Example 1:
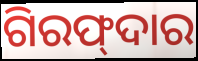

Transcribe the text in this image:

ଗିରଫ୍‍ଦାର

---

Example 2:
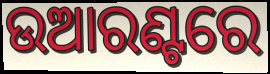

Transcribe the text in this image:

ଉଆରଣ୍ଟରେ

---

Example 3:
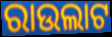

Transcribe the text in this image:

ରାଉଲାଟ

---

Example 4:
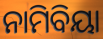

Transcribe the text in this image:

ନାମିବିୟା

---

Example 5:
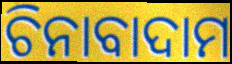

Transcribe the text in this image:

ଚିନାବାଦାମ